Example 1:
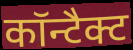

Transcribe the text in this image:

कॉन्टैक्ट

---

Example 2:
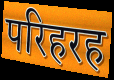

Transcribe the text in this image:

परिहरह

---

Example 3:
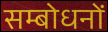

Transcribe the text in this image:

सम्बोधनों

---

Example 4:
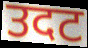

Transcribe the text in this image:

उदट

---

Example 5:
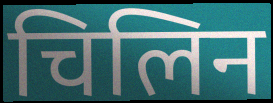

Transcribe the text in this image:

चिलिन